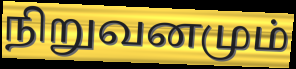
நிறுவனமும்